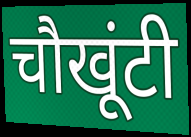
चौखूंटी